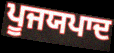
ਪੂਜਯਪਾਦ